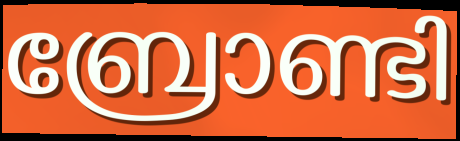
ബ്രോണ്ടി